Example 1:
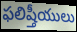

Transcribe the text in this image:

ఫలిష్తీయులు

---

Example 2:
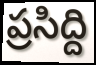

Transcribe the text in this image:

ప్రసిద్ది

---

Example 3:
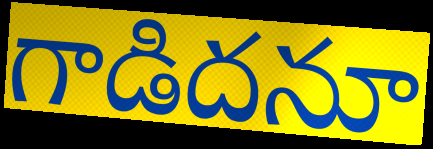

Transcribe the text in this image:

గాడిదనూ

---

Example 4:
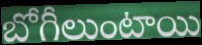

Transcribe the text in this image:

బోగీలుంటాయి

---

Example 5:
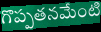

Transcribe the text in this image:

గొప్పతనమేంటి